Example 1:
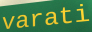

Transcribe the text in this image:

varati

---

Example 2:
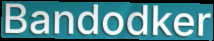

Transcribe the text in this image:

Bandodker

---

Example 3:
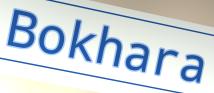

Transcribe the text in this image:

Bokhara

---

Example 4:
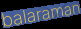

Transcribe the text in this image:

balaraman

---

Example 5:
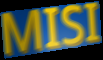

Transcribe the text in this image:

MISI